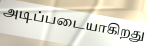
அடிப்படையாகிறது